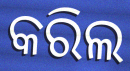
କରିଲ